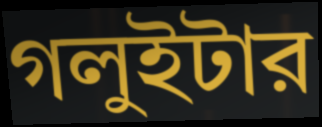
গলুইটার